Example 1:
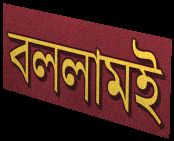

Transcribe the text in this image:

বললামই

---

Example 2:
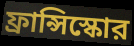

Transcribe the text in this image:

ফ্রান্সিস্কোর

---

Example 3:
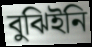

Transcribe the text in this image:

বুঝিইনি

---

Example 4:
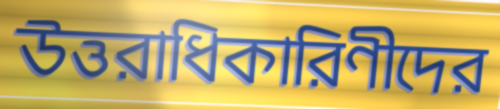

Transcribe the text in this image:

উত্তরাধিকারিণীদের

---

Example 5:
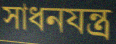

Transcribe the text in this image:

সাধনযন্ত্র